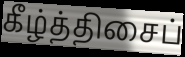
கீழ்த்திசைப்